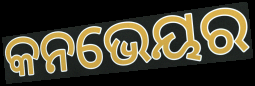
କନଭେୟର